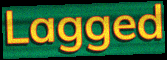
Lagged